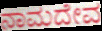
ನಾಮದೇವ